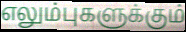
எலும்புகளுக்கும்